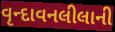
વૃન્દાવનલીલાની